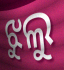
ଝୁଲୁ